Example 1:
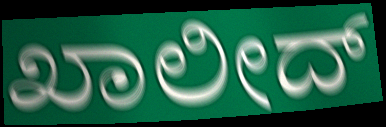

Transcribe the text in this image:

ಖಾಲೀದ್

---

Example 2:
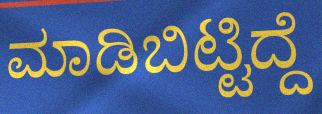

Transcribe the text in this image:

ಮಾಡಿಬಿಟ್ಟಿದ್ದೆ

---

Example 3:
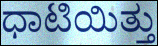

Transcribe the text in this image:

ಧಾಟಿಯಿತ್ತು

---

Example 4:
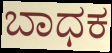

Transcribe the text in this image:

ಬಾಧಕ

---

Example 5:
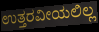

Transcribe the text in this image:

ಉತ್ತರವೀಯಲಿಲ್ಲ